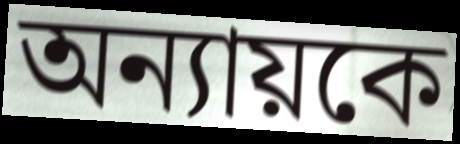
অন্যায়কে